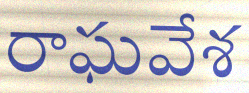
రాఘవేశ